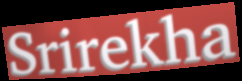
Srirekha